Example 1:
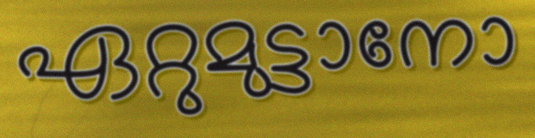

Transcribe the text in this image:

ഏറ്റുമുട്ടാനോ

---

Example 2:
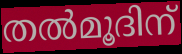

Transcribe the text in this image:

തൽമൂദിന്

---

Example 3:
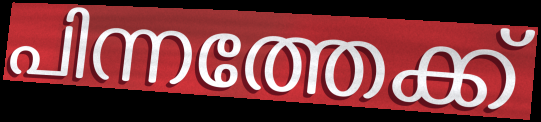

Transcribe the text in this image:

പിന്നത്തേക്ക്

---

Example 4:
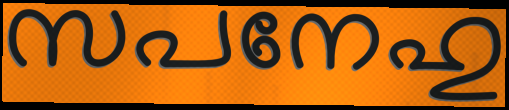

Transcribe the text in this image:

സപനേഹു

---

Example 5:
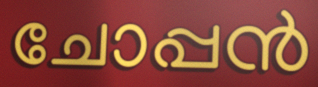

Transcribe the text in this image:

ചോപ്പൻ